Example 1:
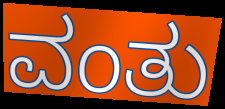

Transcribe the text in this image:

ವಂತು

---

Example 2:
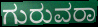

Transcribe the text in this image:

ಗುರುವರಾ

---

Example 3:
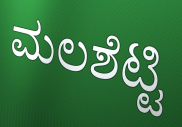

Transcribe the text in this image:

ಮಲಶೆಟ್ಟಿ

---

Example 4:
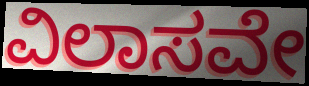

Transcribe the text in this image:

ವಿಲಾಸವೇ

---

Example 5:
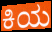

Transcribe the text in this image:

ಕಿಯ